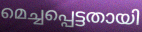
മെച്ചപ്പെട്ടതായി